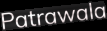
Patrawala